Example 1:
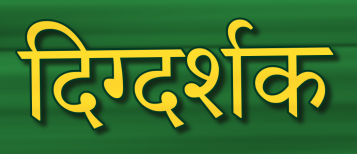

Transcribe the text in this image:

दिग्दर्शक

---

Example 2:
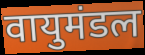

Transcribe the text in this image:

वायुमंडल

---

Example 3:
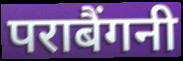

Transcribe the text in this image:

पराबैंगनी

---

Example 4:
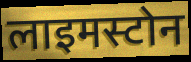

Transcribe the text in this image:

लाइमस्टोन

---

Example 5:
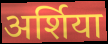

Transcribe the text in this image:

अर्शिया